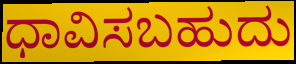
ಧಾವಿಸಬಹುದು